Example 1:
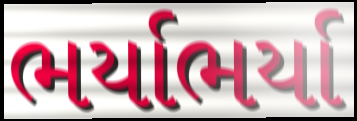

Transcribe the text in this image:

ભર્યાભર્યા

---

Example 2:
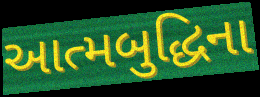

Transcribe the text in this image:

આત્મબુદ્ધિના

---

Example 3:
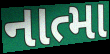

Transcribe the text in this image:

નાત્મા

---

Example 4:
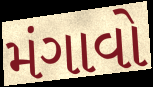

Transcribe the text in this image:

મંગાવો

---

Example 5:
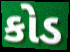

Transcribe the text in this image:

કોડ